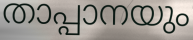
താപ്പാനയും